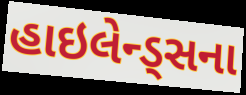
હાઇલેન્ડ્સના